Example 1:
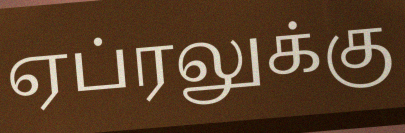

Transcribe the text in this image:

ஏப்ரலுக்கு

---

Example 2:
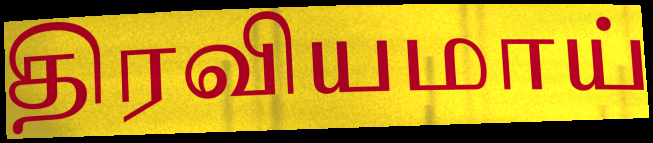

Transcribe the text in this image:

திரவியமாய்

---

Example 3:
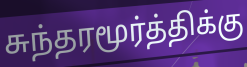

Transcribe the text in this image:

சுந்தரமூர்த்திக்கு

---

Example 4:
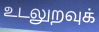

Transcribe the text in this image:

உடலுறவுக்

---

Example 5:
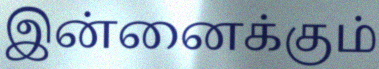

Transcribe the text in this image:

இன்னைக்கும்